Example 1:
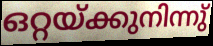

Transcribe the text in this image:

ഒറ്റയ്ക്കുനിന്നു്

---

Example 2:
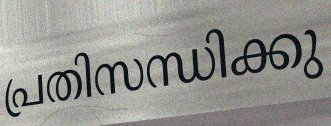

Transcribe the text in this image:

പ്രതിസന്ധിക്കു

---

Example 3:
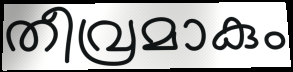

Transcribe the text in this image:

തീവ്രമാകും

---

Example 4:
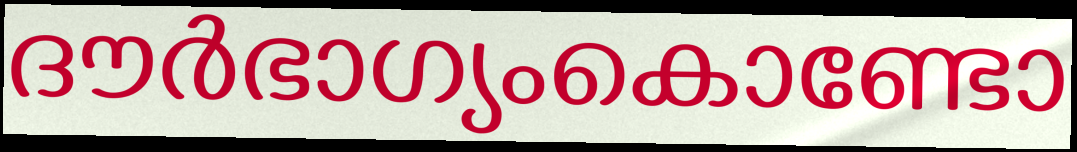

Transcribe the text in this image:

ദൗർഭാഗ്യംകൊണ്ടോ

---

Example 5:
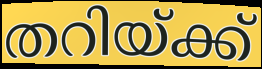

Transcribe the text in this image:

തറിയ്ക്ക്